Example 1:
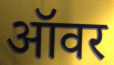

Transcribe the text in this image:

ऑवर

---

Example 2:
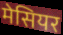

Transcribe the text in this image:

मेसियर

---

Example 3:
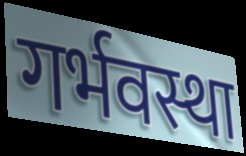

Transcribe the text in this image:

गर्भवस्था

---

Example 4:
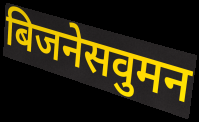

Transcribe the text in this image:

बिजनेसवुमन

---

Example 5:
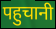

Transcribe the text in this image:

पहुचानी